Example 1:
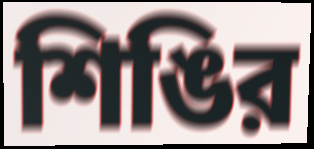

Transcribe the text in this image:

শিঙির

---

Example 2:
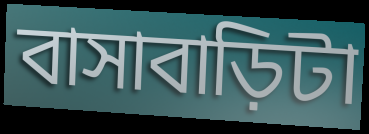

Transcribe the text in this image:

বাসাবাড়িটা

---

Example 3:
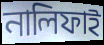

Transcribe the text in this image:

নালিফাই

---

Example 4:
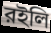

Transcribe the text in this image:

রইলি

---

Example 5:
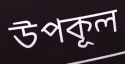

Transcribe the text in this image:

উপকূল